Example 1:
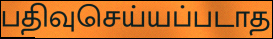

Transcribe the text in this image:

பதிவுசெய்யப்படாத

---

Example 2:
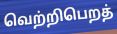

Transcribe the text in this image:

வெற்றிபெறத்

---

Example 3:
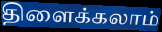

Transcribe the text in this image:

திளைக்கலாம்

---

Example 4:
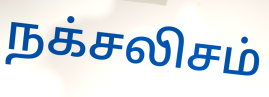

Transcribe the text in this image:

நக்சலிசம்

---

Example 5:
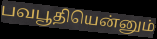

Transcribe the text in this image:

பவபூதியென்னும்